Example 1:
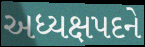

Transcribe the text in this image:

અધ્યક્ષપદને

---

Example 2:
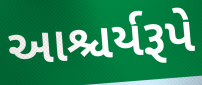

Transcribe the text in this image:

આશ્ચર્યરૂપે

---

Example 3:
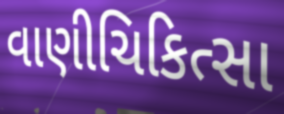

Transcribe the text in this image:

વાણીચિકિત્સા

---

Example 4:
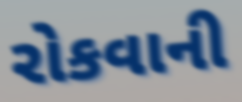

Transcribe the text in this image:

રોકવાની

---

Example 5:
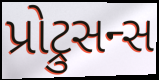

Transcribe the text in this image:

પ્રોટ્રુસન્સ